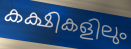
കക്ഷികളിലും